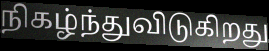
நிகழ்ந்துவிடுகிறது